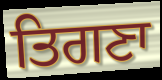
ਤਿਗਣਾ